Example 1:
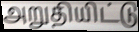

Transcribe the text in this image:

அறுதியிட்டு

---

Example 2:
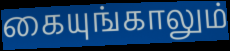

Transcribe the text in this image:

கையுங்காலும்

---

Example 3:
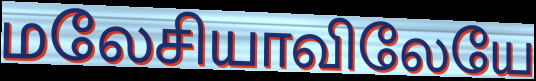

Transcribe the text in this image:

மலேசியாவிலேயே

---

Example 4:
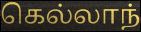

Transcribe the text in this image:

கெல்லாந்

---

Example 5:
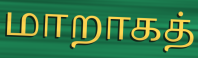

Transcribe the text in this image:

மாறாகத்